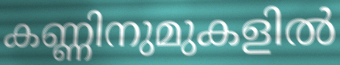
കണ്ണിനുമുകളിൽ